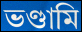
ভণ্ডামি